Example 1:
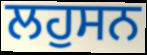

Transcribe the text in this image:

ਲਹੁਸਨ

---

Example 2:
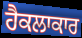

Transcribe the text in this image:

ਹੈਕਲਾਕਾਰ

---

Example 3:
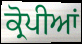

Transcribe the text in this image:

ਕ੍ਰੋਪੀਆਂ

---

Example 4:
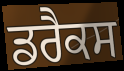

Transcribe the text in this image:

ਡਰੈਕਸ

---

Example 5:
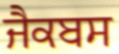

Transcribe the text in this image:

ਜੈਕਬਸ